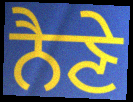
ਨੈਣੇ